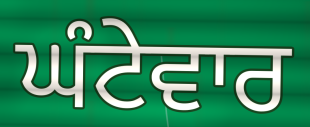
ਘੰਟੇਵਾਰ